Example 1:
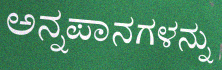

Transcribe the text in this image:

ಅನ್ನಪಾನಗಳನ್ನು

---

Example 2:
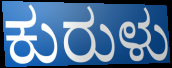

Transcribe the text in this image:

ಕುರುಳು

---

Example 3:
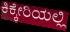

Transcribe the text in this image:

ಕಿಕ್ಕೇರಿಯಲ್ಲಿ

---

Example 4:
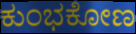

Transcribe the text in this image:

ಕುಂಭಕೋಣ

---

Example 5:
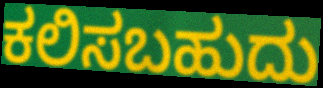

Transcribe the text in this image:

ಕಲಿಸಬಹುದು